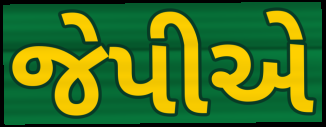
જેપીએ